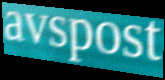
avspost